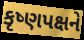
કૃષ્ણપક્ષને